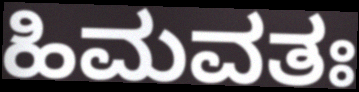
ಹಿಮವತಃ